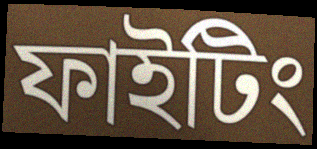
ফাইটিং